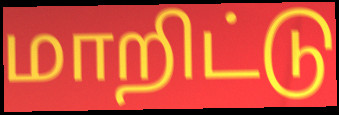
மாறிட்டு